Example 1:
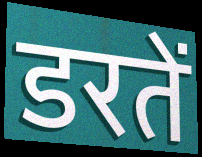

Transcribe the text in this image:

डरतें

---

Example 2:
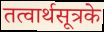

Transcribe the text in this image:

तत्वार्थसूत्रके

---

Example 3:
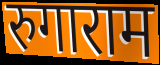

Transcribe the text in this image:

रुगाराम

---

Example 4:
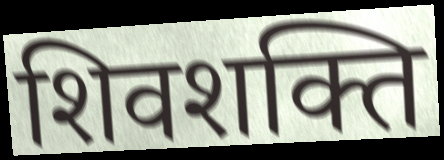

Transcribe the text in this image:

शिवशक्ति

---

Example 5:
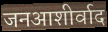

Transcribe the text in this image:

जनआशीर्वाद